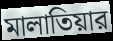
মালাতিয়ার